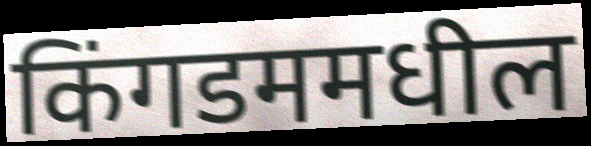
किंगडममधील